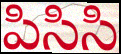
పిసిసి